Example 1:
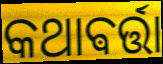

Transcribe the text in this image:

କଥାଵର୍ତ୍ତା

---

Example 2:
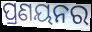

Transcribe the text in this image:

ପ୍ରଣୟନର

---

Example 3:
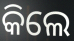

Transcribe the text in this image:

କିଲେ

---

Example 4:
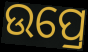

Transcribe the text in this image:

ଉପ୍ରେ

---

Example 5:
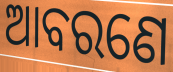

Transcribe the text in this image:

ଆବରଣେ